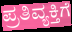
ಪ್ರತಿವ್ಯಕ್ತಿಗೆ